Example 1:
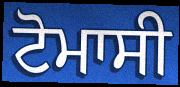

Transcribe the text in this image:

ਟੋਮਾਸੀ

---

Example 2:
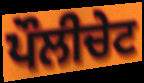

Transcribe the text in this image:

ਪੌਲੀਚੇਟ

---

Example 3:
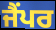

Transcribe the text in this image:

ਜੈਂਪਰ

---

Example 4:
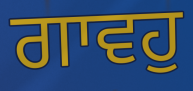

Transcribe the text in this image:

ਗਾਵਹੁ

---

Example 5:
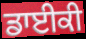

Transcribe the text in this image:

ਡਾਈਕੀ